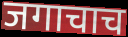
जगाचाच